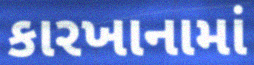
કારખાનામાં